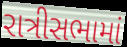
રાત્રીસભામાં